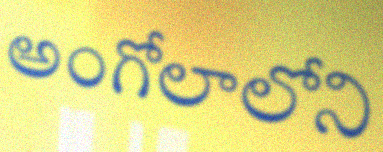
అంగోలాలోని